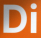
Di